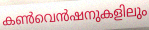
കൺവെൻഷനുകളിലും